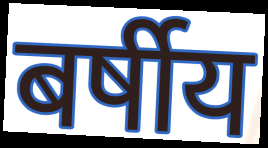
बर्षीय